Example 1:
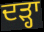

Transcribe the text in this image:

ਦੜ੍ਹਾ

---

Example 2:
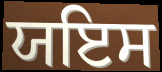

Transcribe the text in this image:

ਯਇਸ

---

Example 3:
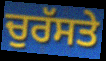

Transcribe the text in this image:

ਚੁਰੱਸਤੇ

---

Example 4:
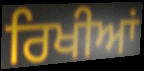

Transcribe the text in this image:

ਰਿਖੀਆਂ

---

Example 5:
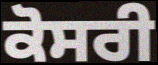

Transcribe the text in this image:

ਕੋਸਰੀ